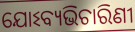
ଯୋଽବ୍ୟଭିଚାରିଣୀ